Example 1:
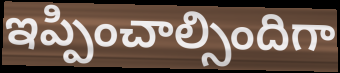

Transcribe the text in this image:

ఇప్పించాల్సిందిగా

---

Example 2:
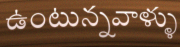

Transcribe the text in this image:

ఉంటున్నవాళ్ళు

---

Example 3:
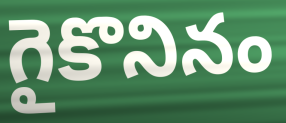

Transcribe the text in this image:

గైకొనినం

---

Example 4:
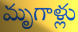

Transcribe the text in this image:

మృగాళ్లు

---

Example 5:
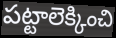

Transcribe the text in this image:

పట్టాలెక్కించి